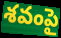
శవంపై